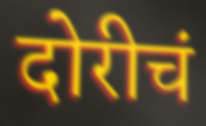
दोरीचं